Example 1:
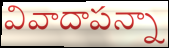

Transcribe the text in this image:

వివాదాపన్నా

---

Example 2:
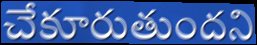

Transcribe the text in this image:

చేకూరుతుందని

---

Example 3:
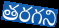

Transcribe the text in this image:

తరగని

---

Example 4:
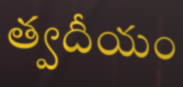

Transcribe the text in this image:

త్వదీయం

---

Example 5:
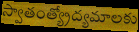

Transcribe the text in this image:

స్వాతంత్య్రోద్యమాలకు